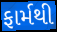
ફાર્મથી